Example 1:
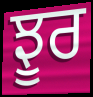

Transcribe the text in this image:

ਝੂਰ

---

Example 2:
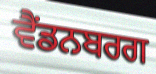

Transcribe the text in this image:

ਵੈਂਡਨਬਰਗ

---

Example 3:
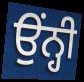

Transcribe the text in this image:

ਉਂਨ੍ਹੀ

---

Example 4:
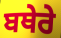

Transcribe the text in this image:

ਬਥੇਰੇ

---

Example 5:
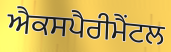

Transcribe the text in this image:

ਐਕਸਪੈਰੀਮੈਂਟਲ